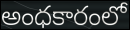
అంధకారంలో